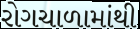
રોગચાળામાંથી